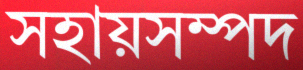
সহায়সম্পদ